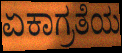
ಏಕಾಗ್ರತೆಯ